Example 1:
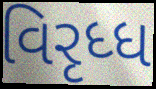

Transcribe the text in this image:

વિરૃધ્ધ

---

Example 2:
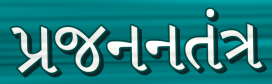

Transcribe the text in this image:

પ્રજનનતંત્ર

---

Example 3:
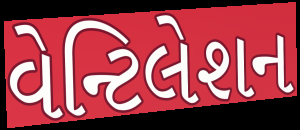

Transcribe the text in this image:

વેન્ટિલેશન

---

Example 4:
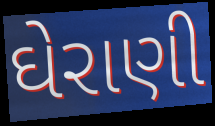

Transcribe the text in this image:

ઘેરાણી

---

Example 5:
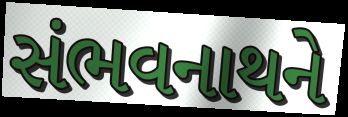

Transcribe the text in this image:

સંભવનાથને